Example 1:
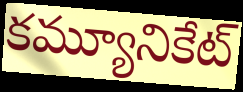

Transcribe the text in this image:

కమ్యూనికేట్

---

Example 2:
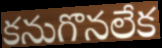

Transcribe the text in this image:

కనుగొనలేక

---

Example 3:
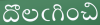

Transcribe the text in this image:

దొలఁగించి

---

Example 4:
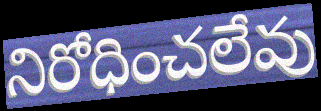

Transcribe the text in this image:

నిరోధించలేవు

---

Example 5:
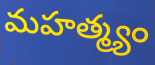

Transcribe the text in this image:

మహత్మ్యం